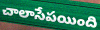
చాలాసేపయింది